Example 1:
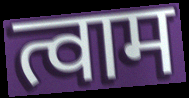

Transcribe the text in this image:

त्वाम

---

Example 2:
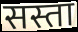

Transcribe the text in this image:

सस्ता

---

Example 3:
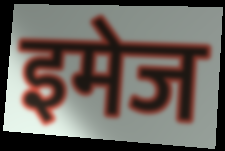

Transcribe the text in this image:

इमेज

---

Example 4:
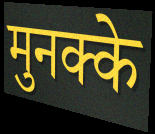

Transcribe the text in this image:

मुनक्के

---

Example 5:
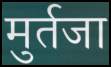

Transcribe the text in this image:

मुर्तजा